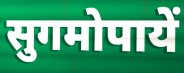
सुगमोपायें